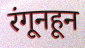
रंगूनहून